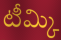
టీమ్కి